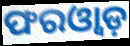
ଫରଓ୍ୱାଡ଼